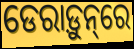
ଡେରାଡ଼ୁନ୍‌ରେ